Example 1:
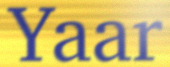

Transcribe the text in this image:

Yaar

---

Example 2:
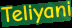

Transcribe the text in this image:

Teliyani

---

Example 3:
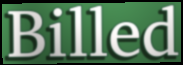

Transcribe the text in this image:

Billed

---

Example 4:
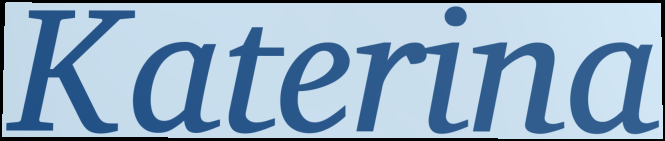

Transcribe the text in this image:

Katerina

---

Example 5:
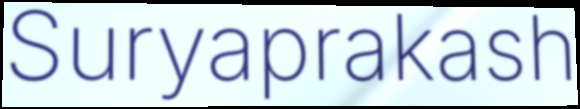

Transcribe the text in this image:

Suryaprakash